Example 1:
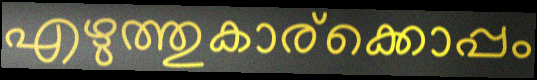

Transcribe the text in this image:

എഴുത്തുകാര്ക്കൊപ്പം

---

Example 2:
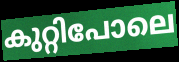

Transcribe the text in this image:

കുറ്റിപോലെ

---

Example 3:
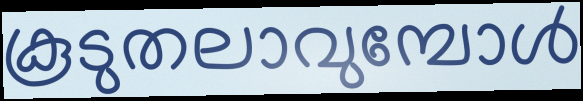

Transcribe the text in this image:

കൂടുതലാവുമ്പോൾ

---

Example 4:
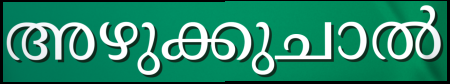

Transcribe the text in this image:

അഴുക്കുചാൽ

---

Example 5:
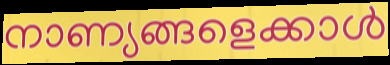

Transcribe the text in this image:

നാണ്യങ്ങളെക്കാൾ